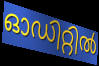
ഓഡിറ്റിൽ